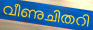
വീണുചിതറി